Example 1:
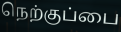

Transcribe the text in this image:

நெற்குப்பை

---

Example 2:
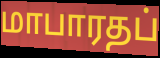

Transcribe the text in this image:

மாபாரதப்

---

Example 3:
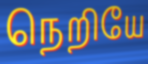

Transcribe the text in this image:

நெறியே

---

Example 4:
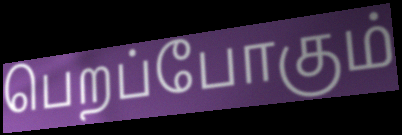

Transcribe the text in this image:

பெறப்போகும்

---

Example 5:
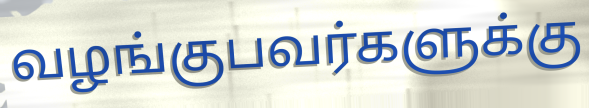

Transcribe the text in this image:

வழங்குபவர்களுக்கு